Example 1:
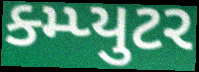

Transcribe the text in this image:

ક્મ્પ્યુટર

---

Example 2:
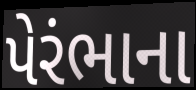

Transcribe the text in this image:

પેરંભાના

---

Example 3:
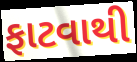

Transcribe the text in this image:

ફાટવાથી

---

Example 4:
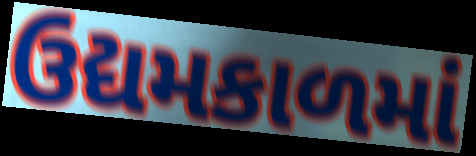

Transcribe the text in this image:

ઉદ્યમકાળમાં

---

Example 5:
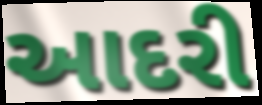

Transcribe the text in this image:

આદરી